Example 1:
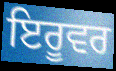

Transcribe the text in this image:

ਇਰੂਵਰ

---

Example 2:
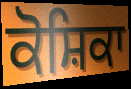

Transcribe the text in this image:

ਕੋਸ਼ਿਕਾ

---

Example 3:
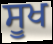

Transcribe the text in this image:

ਸੂਖ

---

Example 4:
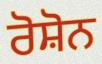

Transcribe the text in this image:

ਰੋਸ਼ੋਨ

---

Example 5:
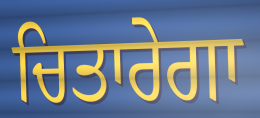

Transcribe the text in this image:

ਚਿਤਾਰੇਗਾ